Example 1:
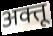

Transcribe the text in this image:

अक्तू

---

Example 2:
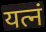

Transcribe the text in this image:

यत्नं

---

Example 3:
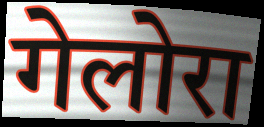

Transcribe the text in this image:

गेलोरा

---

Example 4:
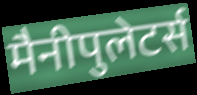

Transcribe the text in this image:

मैनीपुलेटर्स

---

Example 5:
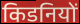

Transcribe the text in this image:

किडनियों